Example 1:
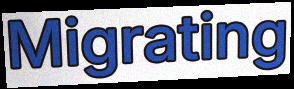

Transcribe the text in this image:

Migrating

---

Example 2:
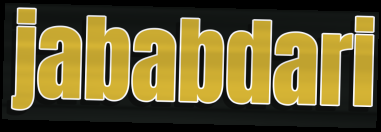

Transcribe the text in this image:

jababdari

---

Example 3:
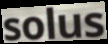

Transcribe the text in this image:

solus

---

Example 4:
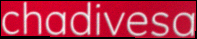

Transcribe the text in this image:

chadivesa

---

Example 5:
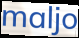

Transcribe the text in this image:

maljo